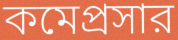
কমেপ্রসার